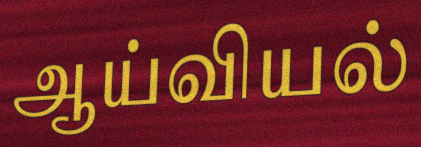
ஆய்வியல்